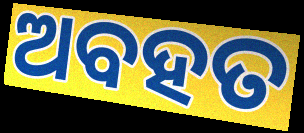
ଅବହତ